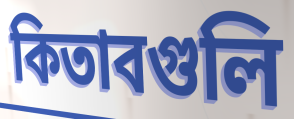
কিতাবগুলি